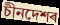
চীনদেশৰ